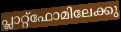
പ്ലാറ്റ്ഫോമിലേക്കു